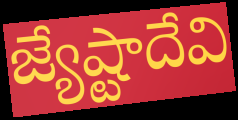
జ్యేష్టాదేవి